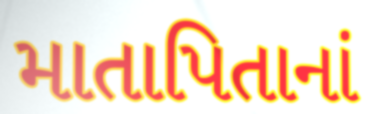
માતાપિતાનાં